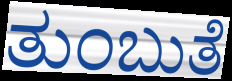
ತುಂಬುತೆ